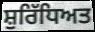
ਸ਼ੁਰਿੱਧਿਅਤ